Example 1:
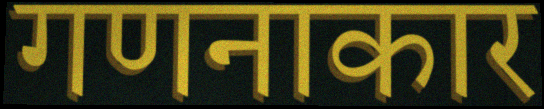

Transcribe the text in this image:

गणनाकार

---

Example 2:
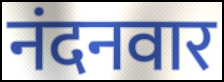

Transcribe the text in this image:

नंदनवार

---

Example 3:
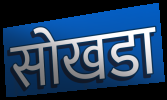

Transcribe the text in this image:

सोखडा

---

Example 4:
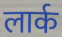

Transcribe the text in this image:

लार्क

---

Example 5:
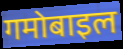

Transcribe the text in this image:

गमोबाइल